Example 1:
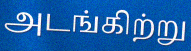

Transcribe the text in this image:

அடங்கிற்று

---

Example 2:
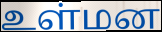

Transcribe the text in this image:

உள்மன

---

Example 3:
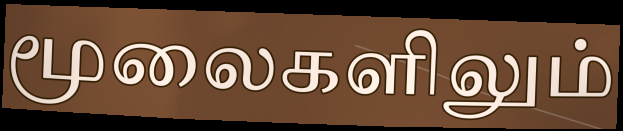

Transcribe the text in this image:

மூலைகளிலும்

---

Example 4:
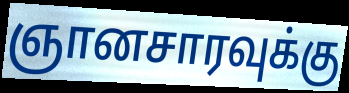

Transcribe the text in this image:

ஞானசாரவுக்கு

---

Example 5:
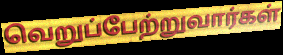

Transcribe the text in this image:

வெறுப்பேற்றுவார்கள்